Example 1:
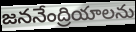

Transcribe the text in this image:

జననేంద్రియాలను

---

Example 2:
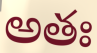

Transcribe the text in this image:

అతః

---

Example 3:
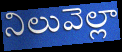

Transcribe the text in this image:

నిలువెల్లా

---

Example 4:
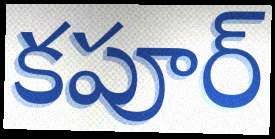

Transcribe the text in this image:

కపూర్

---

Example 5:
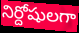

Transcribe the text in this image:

నిర్దోషులగా